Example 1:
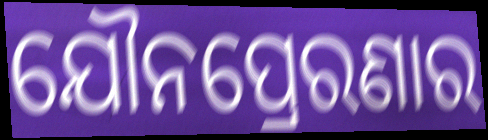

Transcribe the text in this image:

ଯୌନପ୍ରେରଣାର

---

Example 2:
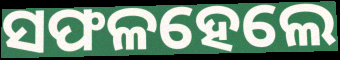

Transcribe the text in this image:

ସଫଳହେଲେ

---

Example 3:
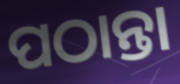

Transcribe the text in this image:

ପଠାନ୍ତା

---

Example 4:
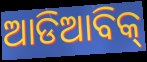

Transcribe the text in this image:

ଆଡିଆବିକ୍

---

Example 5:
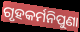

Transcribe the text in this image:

ଗୃହକର୍ମନିପୁଣା